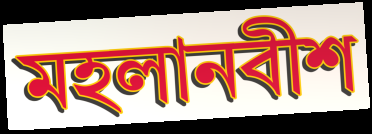
মহলানবীশ